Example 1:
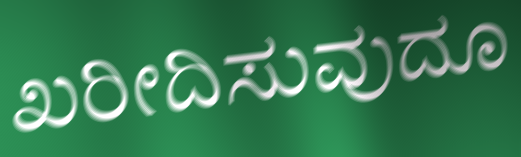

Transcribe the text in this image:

ಖರೀದಿಸುವುದೂ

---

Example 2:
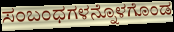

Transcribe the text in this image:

ಸಂಬಂಧಗಳನ್ನೊಳಗೊಂಡ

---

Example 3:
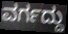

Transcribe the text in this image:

ವರ್ಗದ್ದು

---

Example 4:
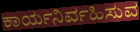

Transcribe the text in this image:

ಕಾರ್ಯನಿರ್ವಹಿಸುವ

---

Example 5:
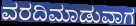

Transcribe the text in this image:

ವರದಿಮಾಡುವಾಗ